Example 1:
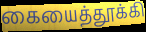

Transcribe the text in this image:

கையைத்தூக்கி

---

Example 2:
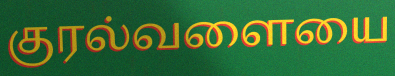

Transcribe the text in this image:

குரல்வளையை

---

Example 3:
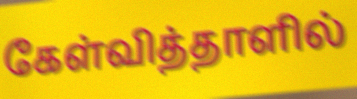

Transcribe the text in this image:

கேள்வித்தாளில்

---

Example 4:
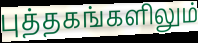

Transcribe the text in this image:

புத்தகங்களிலும்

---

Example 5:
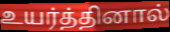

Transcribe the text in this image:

உயர்த்தினால்